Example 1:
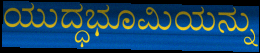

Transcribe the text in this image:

ಯುದ್ಧಭೂಮಿಯನ್ನು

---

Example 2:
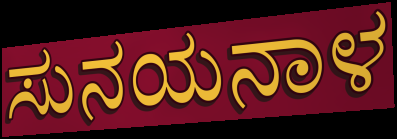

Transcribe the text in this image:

ಸುನಯನಾಳ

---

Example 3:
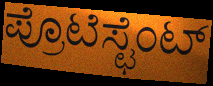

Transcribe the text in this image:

ಪ್ರೊಟೆಸ್ಟೆಂಟ್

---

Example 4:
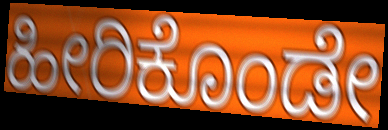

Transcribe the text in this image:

ಹೀರಿಕೊಂಡೇ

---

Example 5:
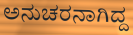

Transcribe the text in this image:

ಅನುಚರನಾಗಿದ್ದ